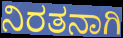
ನಿರತನಾಗಿ